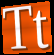
Tt